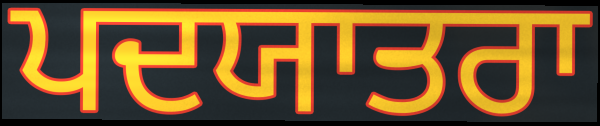
ਪਦਯਾਤਰਾ